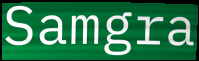
Samgra